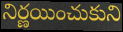
నిర్ణయించుకుని